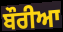
ਬੌਰੀਆ